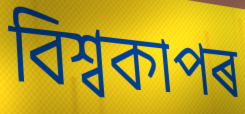
বিশ্বকাপৰ